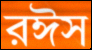
রঈস